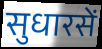
सुधारसें